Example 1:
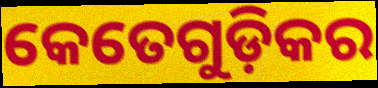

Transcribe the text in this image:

କେତେଗୁଡ଼ିକର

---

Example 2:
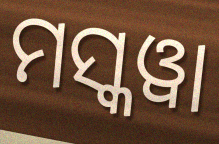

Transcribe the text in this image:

ମସ୍କୱା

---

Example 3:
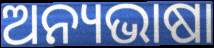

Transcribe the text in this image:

ଅନ୍ୟଭାଷା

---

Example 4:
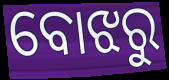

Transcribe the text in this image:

ବୋଝରୁ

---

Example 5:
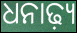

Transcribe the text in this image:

ଧନାଢ଼୍ୟ